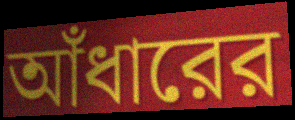
আঁধারের